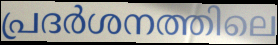
പ്രദർശനത്തിലെ